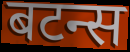
बटन्स